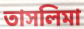
তাসলিমা